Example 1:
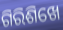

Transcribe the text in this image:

ଗିରିଶିଖେ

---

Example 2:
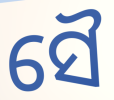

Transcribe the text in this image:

ସୈ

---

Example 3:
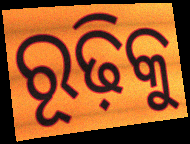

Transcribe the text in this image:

ରୂଢ଼ିକୁ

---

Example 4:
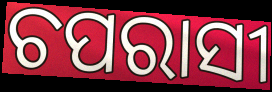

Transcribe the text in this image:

ଚପରାସୀ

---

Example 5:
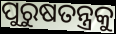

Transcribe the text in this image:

ପୁରୁଷତନ୍ତ୍ରକୁ